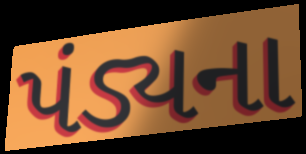
પંડ્યના